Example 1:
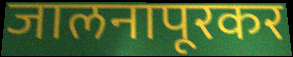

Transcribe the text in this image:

जालनापूरकर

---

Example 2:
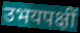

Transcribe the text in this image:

उभयपक्षीं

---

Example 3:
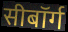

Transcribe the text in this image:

सीबॉर्ग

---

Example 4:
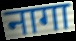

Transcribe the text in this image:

नागा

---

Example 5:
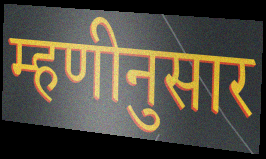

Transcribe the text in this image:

म्हणीनुसार